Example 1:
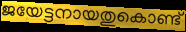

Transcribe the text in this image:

ജയേട്ടനായതുകൊണ്ട്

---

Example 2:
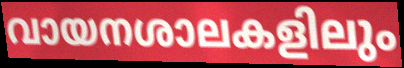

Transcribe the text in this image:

വായനശാലകളിലും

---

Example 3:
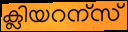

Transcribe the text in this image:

ക്ലിയറന്സ്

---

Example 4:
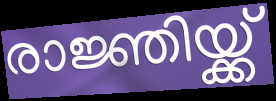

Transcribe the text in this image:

രാജ്ഞിയ്ക്ക്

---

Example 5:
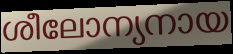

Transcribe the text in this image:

ശീലോന്യനായ